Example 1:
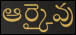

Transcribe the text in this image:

ఆర్కైవు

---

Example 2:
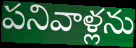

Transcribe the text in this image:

పనివాళ్లను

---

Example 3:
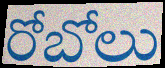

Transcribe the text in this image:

రోబోలు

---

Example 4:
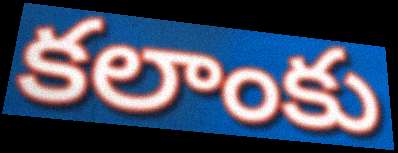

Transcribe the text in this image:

కలాంకు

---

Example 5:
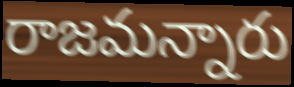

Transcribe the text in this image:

రాజమన్నారు